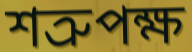
শত্রুপক্ষ